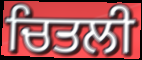
ਚਿਤਲੀ